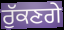
ਰੁੱਕਣਗੇ